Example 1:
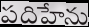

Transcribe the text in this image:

పదిహేను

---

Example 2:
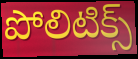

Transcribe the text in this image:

పోలిటిక్స్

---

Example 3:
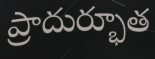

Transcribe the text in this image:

ప్రాదుర్భూత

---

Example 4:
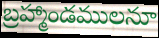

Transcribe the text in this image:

బ్రహ్మాండములనూ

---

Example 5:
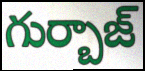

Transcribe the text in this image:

గుర్బాజ్